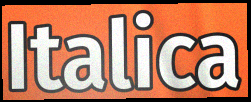
Italica